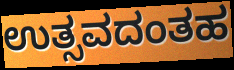
ಉತ್ಸವದಂತಹ